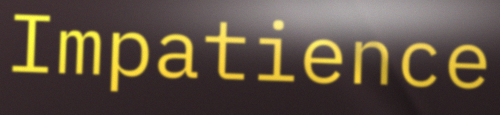
Impatience